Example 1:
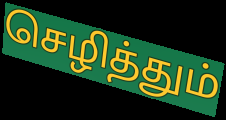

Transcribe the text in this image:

செழித்தும்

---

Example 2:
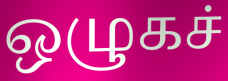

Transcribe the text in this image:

ஒழுகச்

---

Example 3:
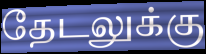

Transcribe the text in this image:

தேடலுக்கு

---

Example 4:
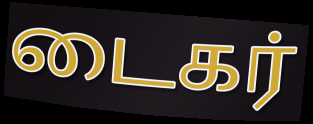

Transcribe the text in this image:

டைகர்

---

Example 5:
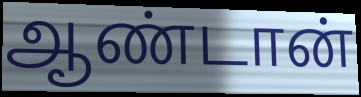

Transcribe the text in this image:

ஆண்டான்